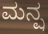
ಮನ್ಷ